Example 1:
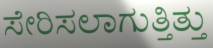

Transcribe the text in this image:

ಸೇರಿಸಲಾಗುತ್ತಿತ್ತು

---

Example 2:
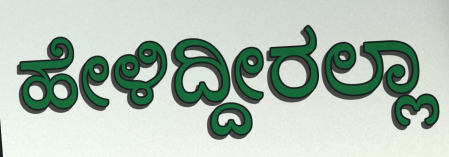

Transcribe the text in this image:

ಹೇಳಿದ್ದೀರಲ್ಲಾ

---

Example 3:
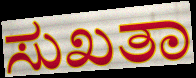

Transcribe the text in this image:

ಸುಖತಾ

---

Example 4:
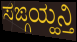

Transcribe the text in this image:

ಸಙ್ಗಯ್ಹನ್ತಿ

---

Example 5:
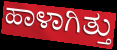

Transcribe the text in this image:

ಹಾಳಾಗಿತ್ತು